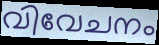
വിവേചനം